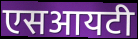
एसआयटी